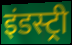
इंडस्‍ट्री